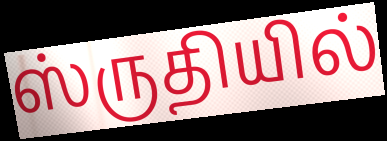
ஸ்ருதியில்